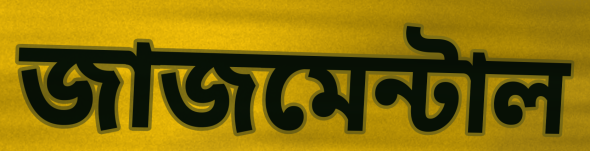
জাজমেন্টাল